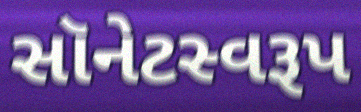
સૉનેટસ્વરૂપ